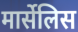
मार्सेलिस